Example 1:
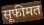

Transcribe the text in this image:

सूफीमत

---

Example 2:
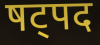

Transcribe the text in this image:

षट्पद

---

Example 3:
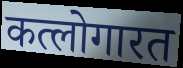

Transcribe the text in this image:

कत्लोगारत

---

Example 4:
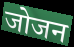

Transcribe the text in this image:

जोजन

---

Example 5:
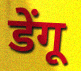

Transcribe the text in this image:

डेंगू